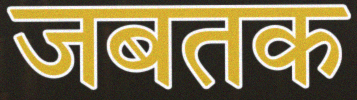
जबतक